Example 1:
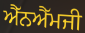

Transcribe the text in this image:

ਐੱਨਐੱਮਜੀ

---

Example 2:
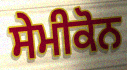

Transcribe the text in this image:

ਸੇਮੀਕੋਨ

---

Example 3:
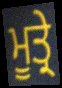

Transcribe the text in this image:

ਮੂਤ੍ਰੇ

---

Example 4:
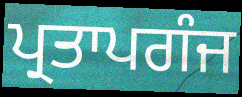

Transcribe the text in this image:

ਪ੍ਰਤਾਪਗੰਜ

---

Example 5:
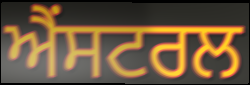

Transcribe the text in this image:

ਐਂਸਟਰਲ